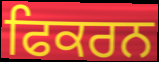
ਫਿਕਰਨ